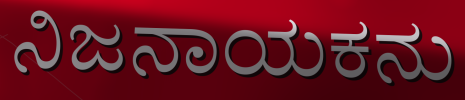
ನಿಜನಾಯಕನು